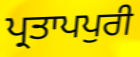
ਪ੍ਰਤਾਪਪੁਰੀ